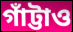
গাঁট্টাও